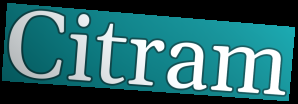
Citram